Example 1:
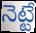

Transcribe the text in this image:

నెట్టే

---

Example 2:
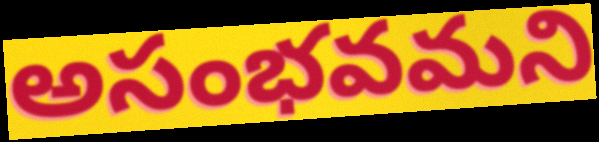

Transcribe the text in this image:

అసంభవమని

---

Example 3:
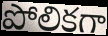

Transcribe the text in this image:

పోలికగా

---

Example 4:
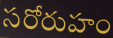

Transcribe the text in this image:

సరోరుహం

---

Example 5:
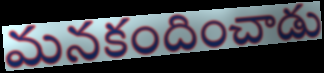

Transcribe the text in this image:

మనకందించాడు